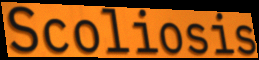
Scoliosis